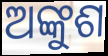
ଅଙ୍କୁଶ